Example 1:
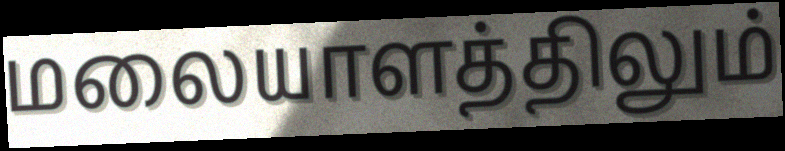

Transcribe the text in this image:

மலையாளத்திலும்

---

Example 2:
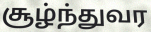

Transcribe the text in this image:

சூழ்ந்துவர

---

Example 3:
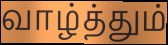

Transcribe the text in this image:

வாழ்த்தும்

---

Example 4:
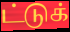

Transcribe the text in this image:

ட்டுக்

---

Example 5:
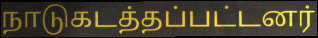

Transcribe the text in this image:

நாடுகடத்தப்பட்டனர்